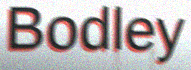
Bodley